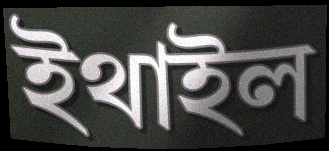
ইথাইল